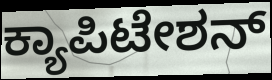
ಕ್ಯಾಪಿಟೇಶನ್